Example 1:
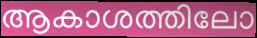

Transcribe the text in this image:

ആകാശത്തിലോ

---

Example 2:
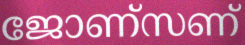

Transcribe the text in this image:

ജോണ്സണ്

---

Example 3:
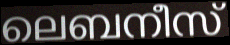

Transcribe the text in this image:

ലെബനീസ്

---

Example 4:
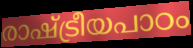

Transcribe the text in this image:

രാഷ്ട്രീയപാഠം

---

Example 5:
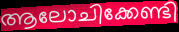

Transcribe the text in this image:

ആലോചിക്കേണ്ടി